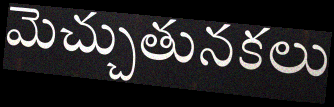
మెచ్చుతునకలు